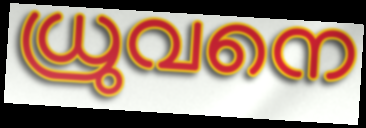
ധ്രുവനെ